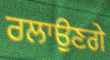
ਰਲਾਉਣਗੇ